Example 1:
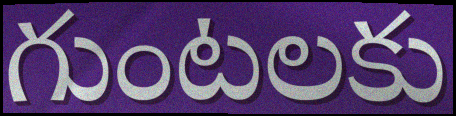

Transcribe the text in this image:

గుంటలకు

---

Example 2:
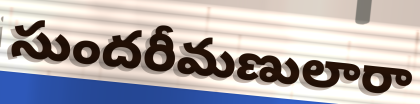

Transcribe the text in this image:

సుందరీమణులారా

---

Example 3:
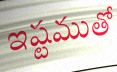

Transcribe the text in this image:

ఇష్టముతో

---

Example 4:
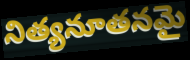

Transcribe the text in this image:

నిత్యనూతనమై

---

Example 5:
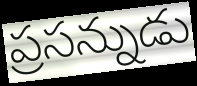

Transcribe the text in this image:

ప్రసన్నుడు